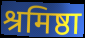
श्रमिष्ठा